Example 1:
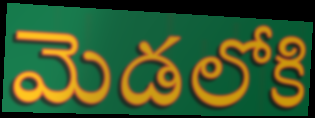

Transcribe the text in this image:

మెడలోకి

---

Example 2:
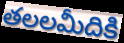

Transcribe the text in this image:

తలలమీదికి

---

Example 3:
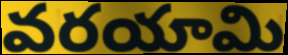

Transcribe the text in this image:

వరయామి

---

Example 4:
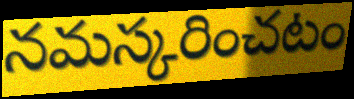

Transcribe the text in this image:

నమస్కరించటం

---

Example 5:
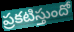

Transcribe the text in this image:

ప్రకటిస్తుందో